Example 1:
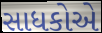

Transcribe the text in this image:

સાધકોએ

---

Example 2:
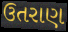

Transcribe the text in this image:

ઉતરાણ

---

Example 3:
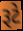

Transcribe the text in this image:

રૂટે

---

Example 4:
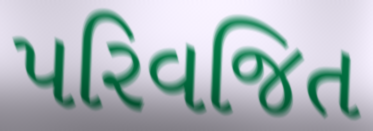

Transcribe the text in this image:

પરિવજિત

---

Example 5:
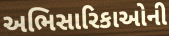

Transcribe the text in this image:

અભિસારિકાઓની